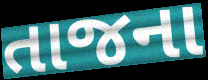
તાજના